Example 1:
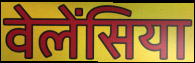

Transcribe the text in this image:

वेलेंसिया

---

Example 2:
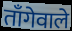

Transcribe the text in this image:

ताँगेवाले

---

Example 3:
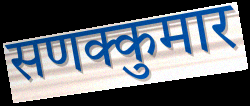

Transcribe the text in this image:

सणक्कुमार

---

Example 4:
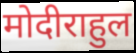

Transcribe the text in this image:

मोदीराहुल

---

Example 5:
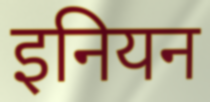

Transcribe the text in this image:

इनियन